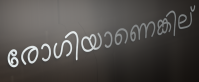
രോഗിയാണെങ്കില്